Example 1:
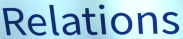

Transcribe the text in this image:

Relations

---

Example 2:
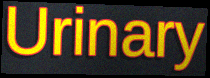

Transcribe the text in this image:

Urinary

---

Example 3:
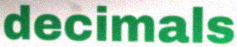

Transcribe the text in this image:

decimals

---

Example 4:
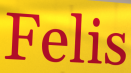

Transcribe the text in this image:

Felis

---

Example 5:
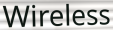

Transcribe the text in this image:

Wireless